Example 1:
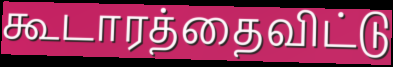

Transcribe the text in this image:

கூடாரத்தைவிட்டு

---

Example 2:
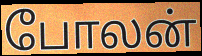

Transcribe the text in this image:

போலன்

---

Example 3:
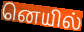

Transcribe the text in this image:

னெயில்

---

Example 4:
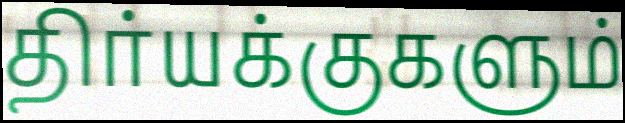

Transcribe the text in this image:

திர்யக்குகளும்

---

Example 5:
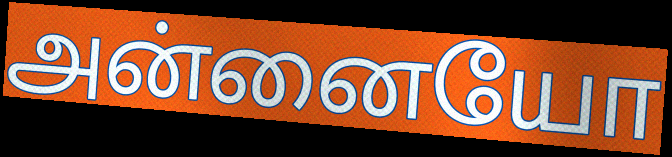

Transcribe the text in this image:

அன்னையோ